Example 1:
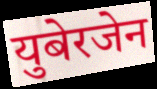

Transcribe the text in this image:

युबेरजेन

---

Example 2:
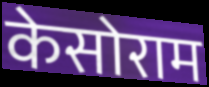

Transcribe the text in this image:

केसोराम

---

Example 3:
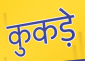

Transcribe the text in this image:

कुकड़े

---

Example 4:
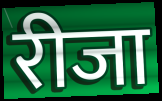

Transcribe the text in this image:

रीजा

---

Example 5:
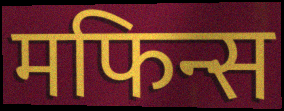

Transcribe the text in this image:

मफिन्स